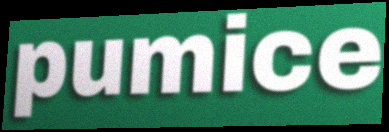
pumice